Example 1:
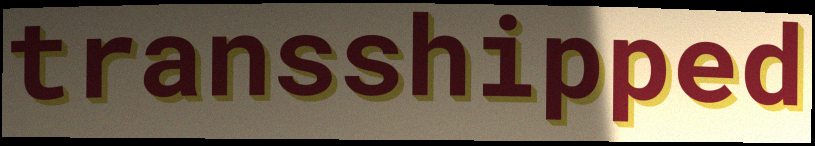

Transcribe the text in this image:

transshipped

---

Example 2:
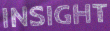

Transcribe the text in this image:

INSIGHT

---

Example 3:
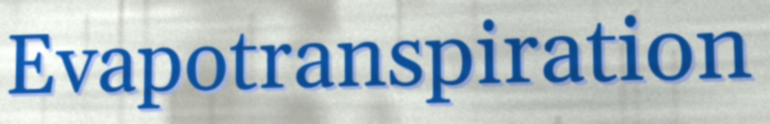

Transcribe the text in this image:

Evapotranspiration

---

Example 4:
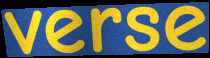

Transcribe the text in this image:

verse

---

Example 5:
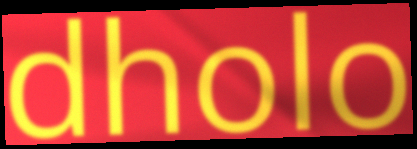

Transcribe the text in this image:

dholo